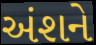
અંશને